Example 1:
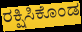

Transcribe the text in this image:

ರಕ್ಷಿಸಿಕೊಂಡ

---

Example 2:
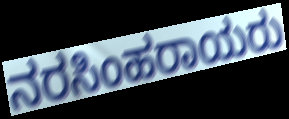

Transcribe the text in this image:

ನರಸಿಂಹರಾಯರು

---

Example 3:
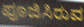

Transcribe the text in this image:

ಪೂಜಿಸಿರುವ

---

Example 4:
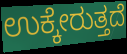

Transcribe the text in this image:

ಉಕ್ಕೇರುತ್ತದೆ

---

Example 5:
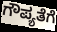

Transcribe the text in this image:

ಗೌಪ್ಯತೆಗೆ